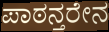
ಪಾಠನ್ತರೇನ